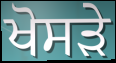
ਖੋਸੜੇ